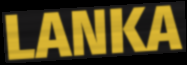
LANKA